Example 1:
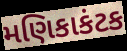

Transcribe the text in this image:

મણિકાકંટક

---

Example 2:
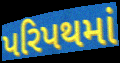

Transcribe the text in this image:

પરિપથમાં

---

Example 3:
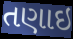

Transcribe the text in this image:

તણાઇ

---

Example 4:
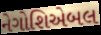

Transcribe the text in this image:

નેગોશિએબલ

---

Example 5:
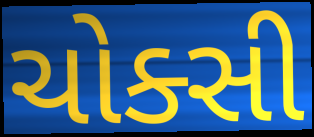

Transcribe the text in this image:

ચોક્સી